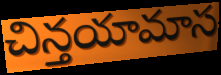
చిన్తయామాస